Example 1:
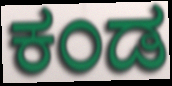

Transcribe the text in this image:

ಕಂಡ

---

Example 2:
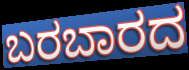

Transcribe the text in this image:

ಬರಬಾರದ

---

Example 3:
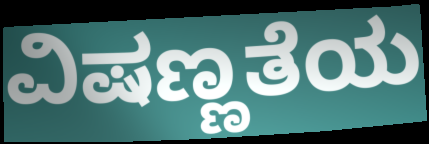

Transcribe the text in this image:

ವಿಷಣ್ಣತೆಯ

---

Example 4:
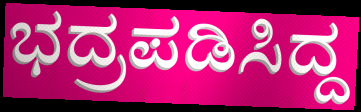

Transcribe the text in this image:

ಭದ್ರಪಡಿಸಿದ್ದ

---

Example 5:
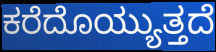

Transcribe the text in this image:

ಕರೆದೊಯ್ಯುತ್ತದೆ